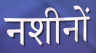
नशीनों